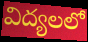
విద్యలలో